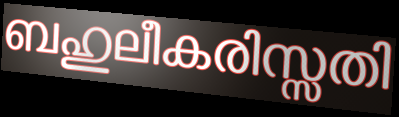
ബഹുലീകരിസ്സതി